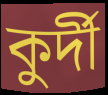
কুর্দী